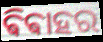
ଵିଵାହର